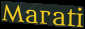
Marati